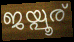
ജയ്പൂര്